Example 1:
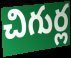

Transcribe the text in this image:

చిగుర్ల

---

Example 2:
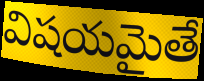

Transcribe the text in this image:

విషయమైతే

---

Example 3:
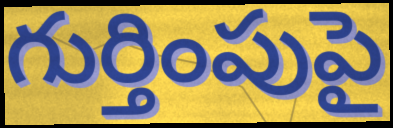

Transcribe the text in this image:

గుర్తింపుపై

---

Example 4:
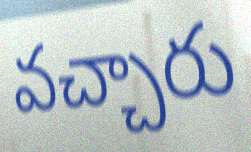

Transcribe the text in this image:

వచ్చారు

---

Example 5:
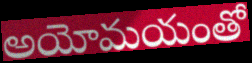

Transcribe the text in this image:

అయోమయంతో